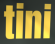
tini